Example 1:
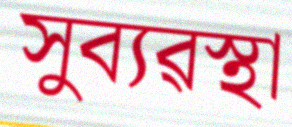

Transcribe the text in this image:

সুব্যৱস্থা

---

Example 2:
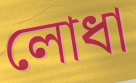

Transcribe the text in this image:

লোধা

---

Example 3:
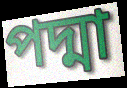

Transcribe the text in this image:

পদ্মা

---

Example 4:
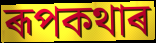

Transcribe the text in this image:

ৰূপকথাৰ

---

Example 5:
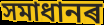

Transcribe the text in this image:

সমাধানৰ